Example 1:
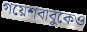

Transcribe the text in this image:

গয়েশবাবুকেও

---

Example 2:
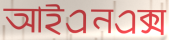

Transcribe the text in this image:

আইএনএক্স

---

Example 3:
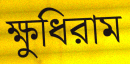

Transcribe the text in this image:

ক্ষুধিরাম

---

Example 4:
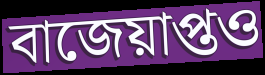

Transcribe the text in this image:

বাজেয়াপ্তও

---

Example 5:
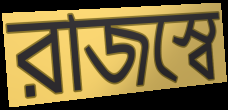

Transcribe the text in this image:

রাজস্বে